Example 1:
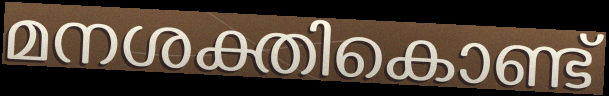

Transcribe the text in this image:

മനശക്തികൊണ്ട്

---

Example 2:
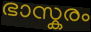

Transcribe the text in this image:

ഭാസ്കരം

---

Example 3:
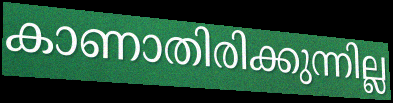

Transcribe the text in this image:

കാണാതിരിക്കുന്നില്ല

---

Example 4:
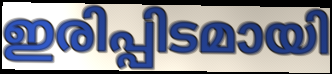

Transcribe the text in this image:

ഇരിപ്പിടമായി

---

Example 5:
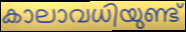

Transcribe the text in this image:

കാലാവധിയുണ്ട്